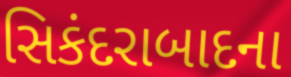
સિકંદરાબાદના